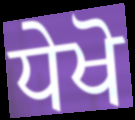
ਧੇਖੋ